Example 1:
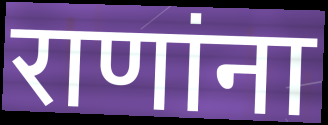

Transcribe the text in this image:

राणांना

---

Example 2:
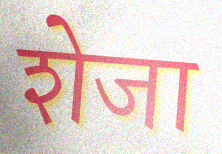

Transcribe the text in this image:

शेजा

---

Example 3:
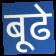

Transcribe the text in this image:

बूढे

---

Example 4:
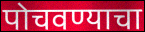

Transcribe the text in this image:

पोचवण्याचा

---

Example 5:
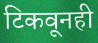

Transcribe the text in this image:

टिकवूनही